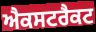
ਐਕਸਟਰੈਕਟ